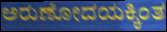
ಅರುಣೋದಯಕ್ಕಿಂತ